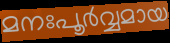
മനഃപൂർവ്വമായ